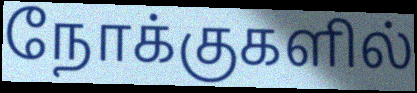
நோக்குகளில்